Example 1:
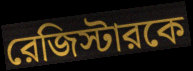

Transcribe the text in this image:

রেজিস্টারকে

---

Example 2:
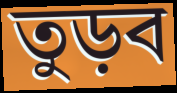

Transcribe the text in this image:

তুড়ব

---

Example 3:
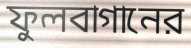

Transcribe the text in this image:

ফুলবাগানের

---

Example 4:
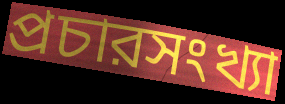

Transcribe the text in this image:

প্রচারসংখ্যা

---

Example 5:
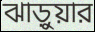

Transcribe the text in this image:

ঝাড়ুয়ার